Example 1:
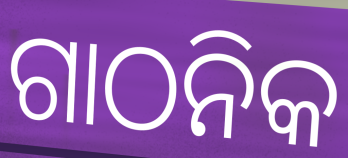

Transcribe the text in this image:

ଗାଠନିକ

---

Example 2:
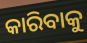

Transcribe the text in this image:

କାରିବାକୁ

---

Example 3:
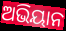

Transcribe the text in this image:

ଅଭିୟାନ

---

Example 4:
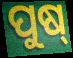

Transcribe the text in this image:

ପୁଷ୍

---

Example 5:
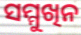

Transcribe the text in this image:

ସମ୍ମୁଖିନ